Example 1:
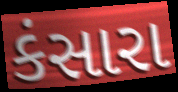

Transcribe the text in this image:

કંસારા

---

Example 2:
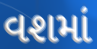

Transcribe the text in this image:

વશમાં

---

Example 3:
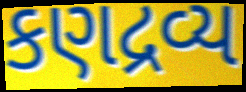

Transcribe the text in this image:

કણદ્રવ્ય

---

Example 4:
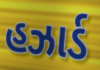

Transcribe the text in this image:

હઝાર્ડ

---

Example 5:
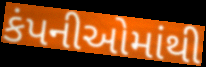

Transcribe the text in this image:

કંપનીઓમાંથી